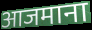
आजमाना